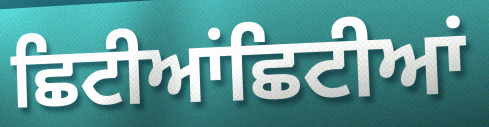
ਛਿਟੀਆਂਛਿਟੀਆਂ